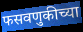
फसवणुकीच्या